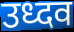
उध्दव